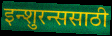
इन्शुरन्ससाठी